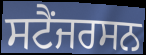
ਸਟੈਂਜਰਸਨ